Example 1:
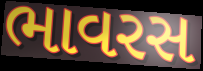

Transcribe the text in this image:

ભાવરસ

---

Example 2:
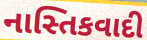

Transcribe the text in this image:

નાસ્તિકવાદી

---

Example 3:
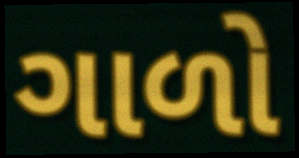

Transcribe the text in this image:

ગાળો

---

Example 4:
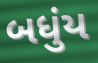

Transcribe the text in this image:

બધુંય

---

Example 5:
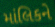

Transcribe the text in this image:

માંલિકને